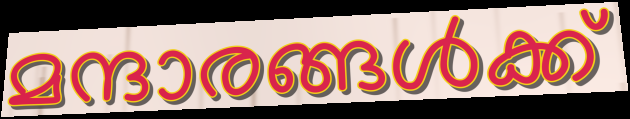
മന്ദാരങ്ങൾക്ക്